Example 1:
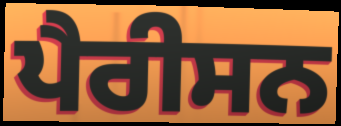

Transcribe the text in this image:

ਪੈਰੀਸਨ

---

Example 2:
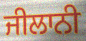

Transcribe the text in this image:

ਜੀਲਾਨੀ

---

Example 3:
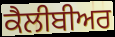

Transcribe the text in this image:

ਕੈਲੀਬੀਅਰ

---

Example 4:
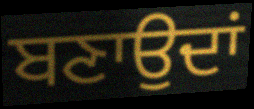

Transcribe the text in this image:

ਬਣਾਉਦਾਂ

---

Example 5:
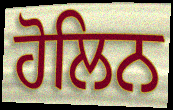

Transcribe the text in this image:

ਹੋਲਿਨ